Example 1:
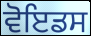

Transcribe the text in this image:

ਵੋਇਡਸ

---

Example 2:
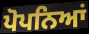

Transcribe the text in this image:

ਪੋਪਨਿਆਂ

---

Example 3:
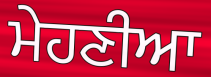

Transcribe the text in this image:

ਮੇਹਣੀਆ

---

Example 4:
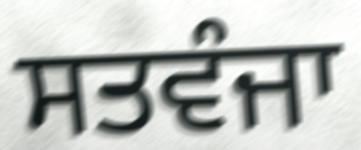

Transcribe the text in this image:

ਸਤਵੰਜਾ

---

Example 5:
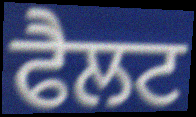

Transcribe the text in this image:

ਫੈਲਟ